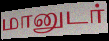
மானுடர்